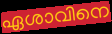
ഏശാവിനെ